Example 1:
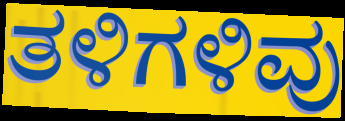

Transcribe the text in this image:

ತಳಿಗಳಿವು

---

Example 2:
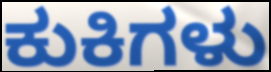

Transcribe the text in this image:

ಕುಕಿಗಳು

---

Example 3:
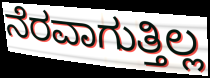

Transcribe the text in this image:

ನೆರವಾಗುತ್ತಿಲ್ಲ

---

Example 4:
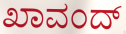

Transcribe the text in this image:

ಖಾವಂದ್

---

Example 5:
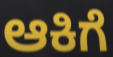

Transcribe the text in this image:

ಆಕಿಗೆ